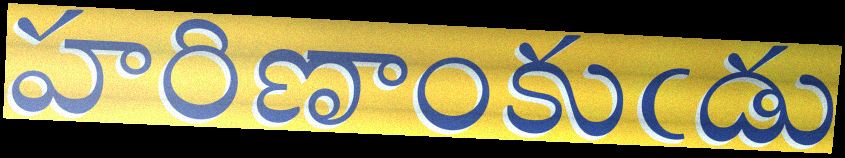
హరిణాంకుఁడు